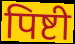
पिष्टी